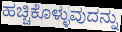
ಹಚ್ಚಿಕೊಳ್ಳುವುದನ್ನು